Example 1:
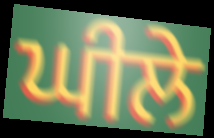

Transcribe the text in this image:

ਘੀਲੇ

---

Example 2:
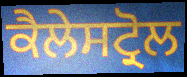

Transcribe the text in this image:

ਕੈਲੇਸਟ੍ਰੋਲ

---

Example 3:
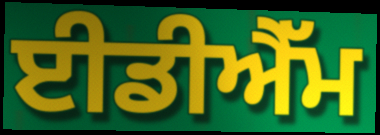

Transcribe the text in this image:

ਈਡੀਐੱਮ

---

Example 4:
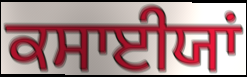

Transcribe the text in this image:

ਕਸਾਈਯਾਂ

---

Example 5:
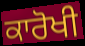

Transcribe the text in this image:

ਕਾਰੋਖੀ